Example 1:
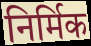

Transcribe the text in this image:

निर्मिक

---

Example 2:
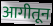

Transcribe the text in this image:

आगीतून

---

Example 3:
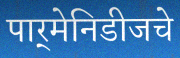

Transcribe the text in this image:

पार्मेनिडीजचे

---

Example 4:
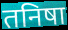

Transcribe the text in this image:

तनिषा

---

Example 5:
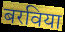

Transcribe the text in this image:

बरविया